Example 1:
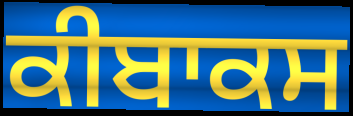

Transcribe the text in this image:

ਕੀਬਾਕਸ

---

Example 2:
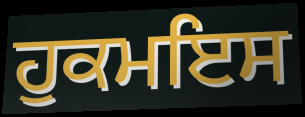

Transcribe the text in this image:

ਹੁਕਮਇਸ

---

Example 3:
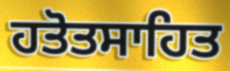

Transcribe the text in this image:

ਹਤੋਤਸਾਹਿਤ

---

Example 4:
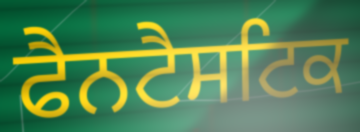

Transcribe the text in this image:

ਫੈਨਟੈਸਟਿਕ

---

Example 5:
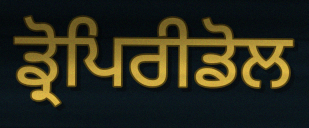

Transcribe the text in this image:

ਡ੍ਰੋਪਿਰੀਡੋਲ